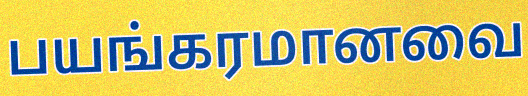
பயங்கரமானவை